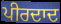
ਪੀਰਦਾਦ